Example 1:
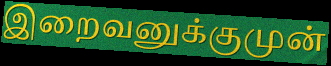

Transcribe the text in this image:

இறைவனுக்குமுன்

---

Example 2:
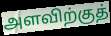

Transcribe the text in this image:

அளவிற்குத்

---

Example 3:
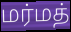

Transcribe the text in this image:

மர்மத்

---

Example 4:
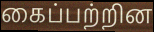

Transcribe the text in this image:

கைப்பற்றின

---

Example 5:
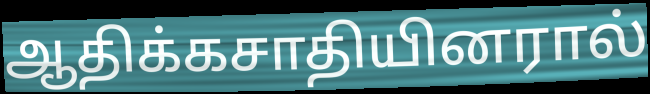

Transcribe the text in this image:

ஆதிக்கசாதியினரால்